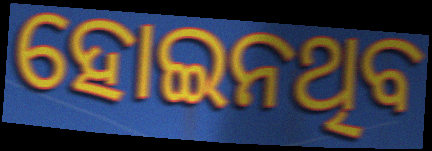
ହୋଇନଥିବ